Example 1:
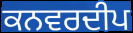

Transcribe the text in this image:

ਕਨਵਰਦੀਪ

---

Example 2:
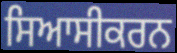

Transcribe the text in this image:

ਸਿਆਸੀਕਰਨ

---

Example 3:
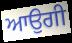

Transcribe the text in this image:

ਆਉਗੀ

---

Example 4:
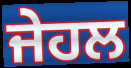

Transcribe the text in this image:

ਜੇਹਲ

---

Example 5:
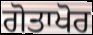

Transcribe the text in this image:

ਗੋਤਾਖੋਰ